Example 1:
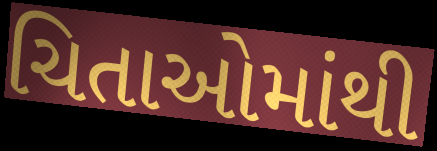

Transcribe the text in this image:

ચિતાઓમાંથી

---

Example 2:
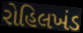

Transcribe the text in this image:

રોહિલખંડ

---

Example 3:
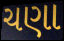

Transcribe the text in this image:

ચણા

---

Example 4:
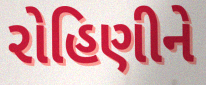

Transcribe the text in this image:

રોહિણીને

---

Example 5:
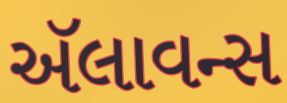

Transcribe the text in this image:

ઍલાવન્સ